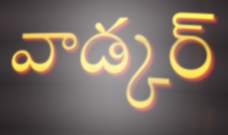
వాడ్కర్